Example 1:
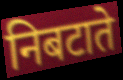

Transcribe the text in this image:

निबटाते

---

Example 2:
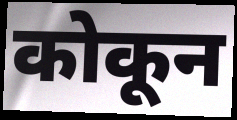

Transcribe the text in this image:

कोकून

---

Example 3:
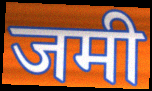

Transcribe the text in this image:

जमी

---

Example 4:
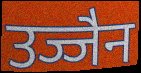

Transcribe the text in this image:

उज्जैन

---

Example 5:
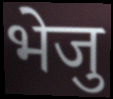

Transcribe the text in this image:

भेजु